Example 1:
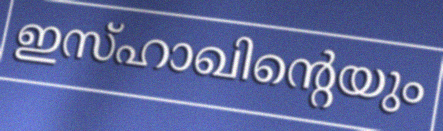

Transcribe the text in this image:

ഇസ്ഹാഖിന്റെയും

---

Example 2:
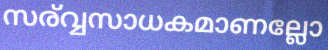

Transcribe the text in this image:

സര്വ്വസാധകമാണല്ലോ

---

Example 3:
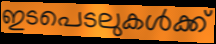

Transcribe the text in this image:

ഇടപെടലുകൾക്ക്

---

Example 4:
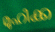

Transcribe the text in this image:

മുഹിക്ക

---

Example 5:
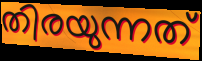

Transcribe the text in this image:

തിരയുന്നത്